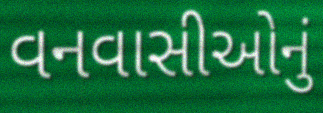
વનવાસીઓનું